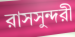
রাসসুন্দরী